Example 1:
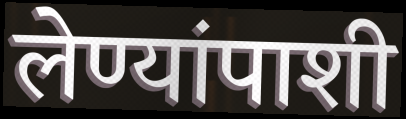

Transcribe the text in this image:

लेण्यांपाशी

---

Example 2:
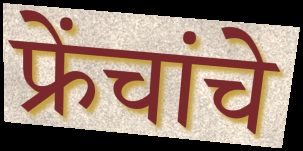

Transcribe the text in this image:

फ्रेंचांचे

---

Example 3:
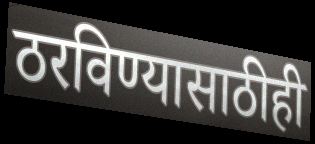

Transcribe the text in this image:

ठरविण्यासाठीही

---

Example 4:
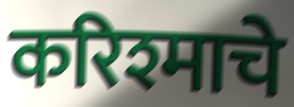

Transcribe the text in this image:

करिश्माचे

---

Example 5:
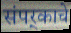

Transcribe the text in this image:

संपर्काचे